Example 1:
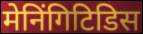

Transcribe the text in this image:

मेनिंगिटिडिस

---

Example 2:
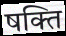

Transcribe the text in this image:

षक्ति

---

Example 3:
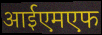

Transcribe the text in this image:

आईएमएफ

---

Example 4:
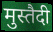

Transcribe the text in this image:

मुस्तैदी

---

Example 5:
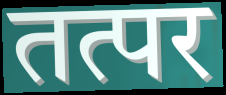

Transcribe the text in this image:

तत्पर